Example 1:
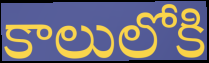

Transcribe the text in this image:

కాలులోకి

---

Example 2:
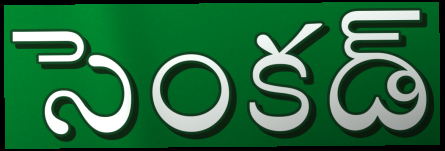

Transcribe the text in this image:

సెంకడ్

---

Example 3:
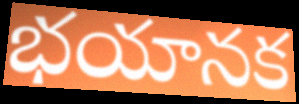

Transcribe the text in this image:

భయానక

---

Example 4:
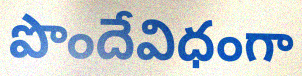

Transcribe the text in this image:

పొందేవిధంగా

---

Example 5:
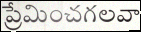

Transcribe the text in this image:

ప్రేమించగలవా